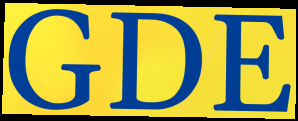
GDE